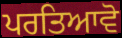
ਪਰਤਿਆਵੋ